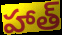
హాత్